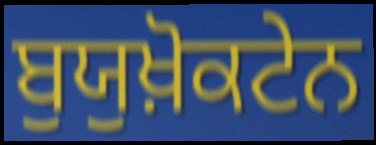
ਬੁਯੁਖ਼ੋਕਟੇਨ